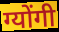
ग्योंगी